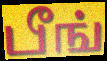
பீங்